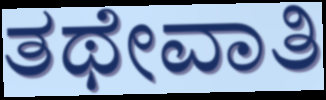
ತಥೇವಾತಿ